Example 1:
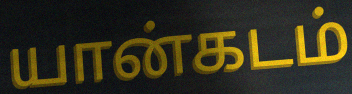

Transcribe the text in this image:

யான்கடம்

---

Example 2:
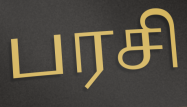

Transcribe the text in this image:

பரசி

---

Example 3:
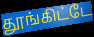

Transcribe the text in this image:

தூங்கிட்டே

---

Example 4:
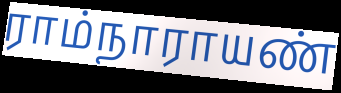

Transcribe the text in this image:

ராம்நாராயண்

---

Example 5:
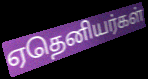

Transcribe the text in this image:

ஏதெனியர்கள்